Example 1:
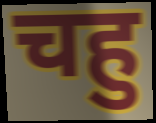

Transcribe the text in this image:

चहु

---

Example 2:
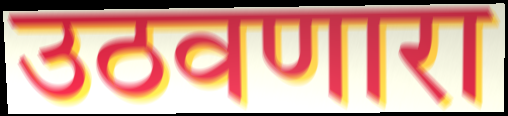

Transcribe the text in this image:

उठवणारा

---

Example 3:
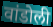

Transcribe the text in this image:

वांडोली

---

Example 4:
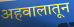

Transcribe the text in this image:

अहवालातून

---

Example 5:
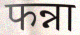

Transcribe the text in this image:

फन्ना